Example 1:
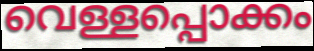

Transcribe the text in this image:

വെള്ളപ്പൊക്കം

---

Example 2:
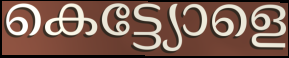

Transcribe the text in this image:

കെട്ട്യോളെ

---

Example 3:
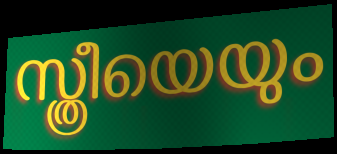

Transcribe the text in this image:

സ്ത്രീയെയും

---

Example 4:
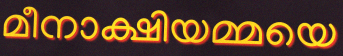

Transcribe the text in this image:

മീനാക്ഷിയമ്മയെ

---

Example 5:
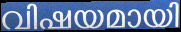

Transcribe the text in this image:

വിഷയമായി